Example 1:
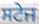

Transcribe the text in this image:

ਸਟੇਜ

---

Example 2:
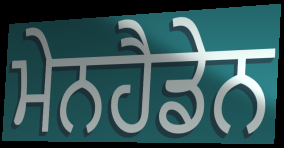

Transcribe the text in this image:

ਮੇਨਹੈਡੇਨ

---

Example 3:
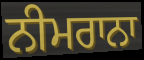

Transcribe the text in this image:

ਨੀਮਰਾਨਾ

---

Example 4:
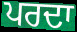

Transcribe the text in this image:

ਪਰਦਾ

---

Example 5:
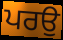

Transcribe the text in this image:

ਪਰਉ